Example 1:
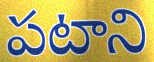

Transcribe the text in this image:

పటాని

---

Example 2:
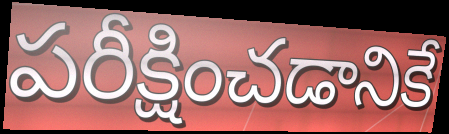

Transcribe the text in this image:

పరీక్షించడానికే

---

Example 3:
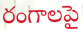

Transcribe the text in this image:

రంగాలపై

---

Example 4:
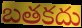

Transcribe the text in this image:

బతకదు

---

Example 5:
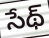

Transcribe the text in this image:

సేథ్